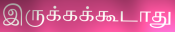
இருக்கக்கூடாது